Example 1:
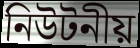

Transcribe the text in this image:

নিউটনীয়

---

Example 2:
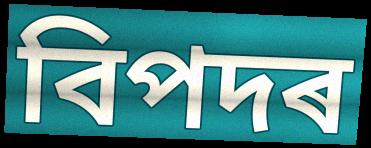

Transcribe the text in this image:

বিপদৰ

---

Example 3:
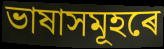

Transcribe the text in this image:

ভাষাসমূহৰে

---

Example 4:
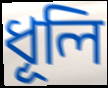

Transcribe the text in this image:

ধূলি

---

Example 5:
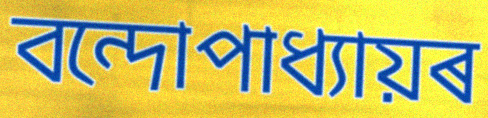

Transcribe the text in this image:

বন্দোপাধ্যায়ৰ